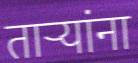
ताऱ्यांना